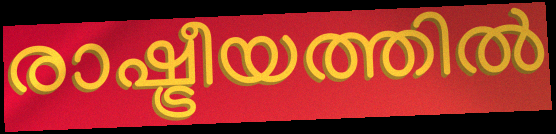
രാഷ്ട്രീയത്തിൽ